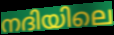
നദിയിലെ